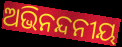
ଅଭିନନ୍ଦନୀୟ